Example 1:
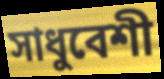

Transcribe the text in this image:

সাধুবেশী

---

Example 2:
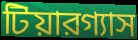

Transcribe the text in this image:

টিয়ারগ্যাস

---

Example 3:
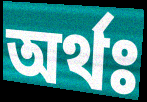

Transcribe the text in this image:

অর্থঃ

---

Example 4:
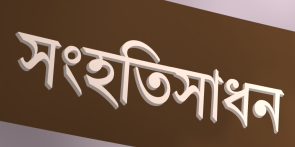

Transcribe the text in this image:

সংহতিসাধন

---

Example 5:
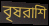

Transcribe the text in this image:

বৃষরাশি